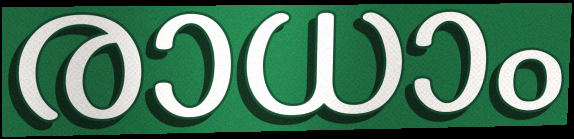
രാധാം